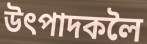
উৎপাদকলৈ